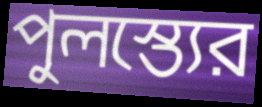
পুলস্ত্যের